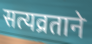
सत्यव्रताने